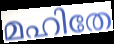
മഹിതേ